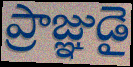
ప్రాజ్ఞుడై